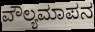
ವೌಲ್ಯಮಾಪನ